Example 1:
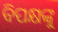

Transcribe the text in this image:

ବିପକ୍ଷଙ୍କୁ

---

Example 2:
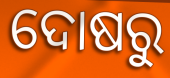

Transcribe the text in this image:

ଦୋଷରୁ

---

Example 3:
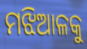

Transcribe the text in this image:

ମଝିଆଳକୁ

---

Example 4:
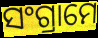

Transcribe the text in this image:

ସଂଗ୍ରାମେ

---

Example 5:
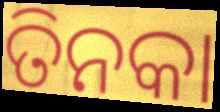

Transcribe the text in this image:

ତିନକା